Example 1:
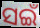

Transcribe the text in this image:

ସଇଁ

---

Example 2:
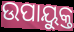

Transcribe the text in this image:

ଉପାୟୁକ୍ତ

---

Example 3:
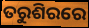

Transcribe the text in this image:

ତରୁଶିରରେ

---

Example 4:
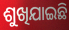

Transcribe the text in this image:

ଶୁଖିଯାଇଛି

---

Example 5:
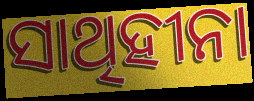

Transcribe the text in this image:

ସାଥିହୀନା